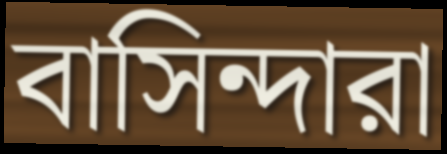
বাসিন্দারা